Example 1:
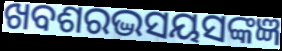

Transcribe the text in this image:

ଖବଶରଦ୍ଭସୟସଙ୍କଜ୍ଞ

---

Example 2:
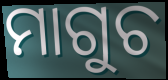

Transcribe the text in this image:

ମାଗୁଚ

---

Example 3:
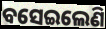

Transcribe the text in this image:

ବସେଇଲେଣି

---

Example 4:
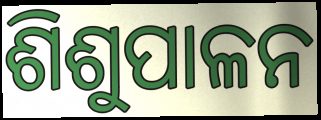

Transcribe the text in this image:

ଶିଶୁପାଳନ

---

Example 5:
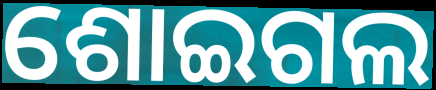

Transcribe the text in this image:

ଶୋଇଗଲ